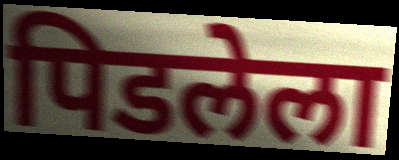
पिडलेला